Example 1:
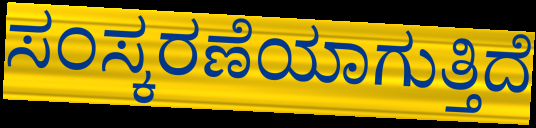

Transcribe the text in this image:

ಸಂಸ್ಕರಣೆಯಾಗುತ್ತಿದೆ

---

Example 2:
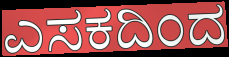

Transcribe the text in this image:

ಎಸಕದಿಂದ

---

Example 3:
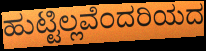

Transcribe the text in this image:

ಹುಟ್ಟಿಲ್ಲವೆಂದರಿಯದ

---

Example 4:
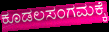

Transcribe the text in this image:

ಕೂಡಲಸಂಗಮಕ್ಕೆ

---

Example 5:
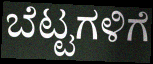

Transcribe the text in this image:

ಬೆಟ್ಟಗಳಿಗೆ